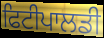
ਫਿਟੀਪਾਲਡੀ